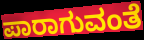
ಪಾರಾಗುವಂತೆ